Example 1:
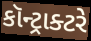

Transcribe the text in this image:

કૉન્ટ્રાક્ટરે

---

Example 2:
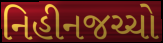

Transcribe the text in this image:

નિહીનજચ્ચો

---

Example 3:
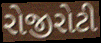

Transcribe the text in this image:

રોજીરોટી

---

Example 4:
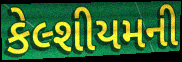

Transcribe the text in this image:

કેલ્શીયમની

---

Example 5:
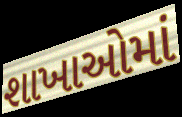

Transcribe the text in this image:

શાખાઓમાં